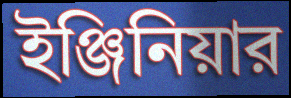
ইঞ্জিনিয়ার